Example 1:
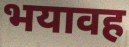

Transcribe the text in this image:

भयावह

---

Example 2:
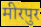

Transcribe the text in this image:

मीरपुर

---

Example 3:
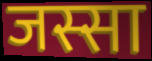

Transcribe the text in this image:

जस्सा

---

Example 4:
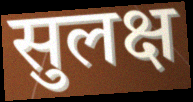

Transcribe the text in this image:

सुलक्ष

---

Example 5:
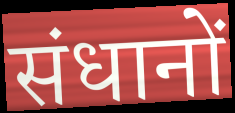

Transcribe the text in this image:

संधानों